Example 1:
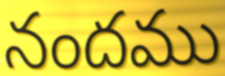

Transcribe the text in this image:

నందము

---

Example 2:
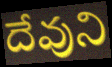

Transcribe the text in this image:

దేవుని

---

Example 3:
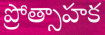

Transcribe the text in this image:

ప్రోత్సాహక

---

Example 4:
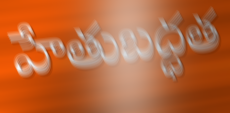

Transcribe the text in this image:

హేతుబద్ధత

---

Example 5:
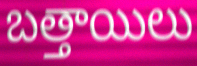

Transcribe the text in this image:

బత్తాయిలు